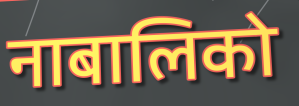
नाबालिको